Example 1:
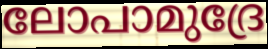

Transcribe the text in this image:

ലോപാമുദ്രേ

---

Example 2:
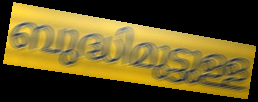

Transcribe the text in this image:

ബുദ്ധിമുട്ടുള്ള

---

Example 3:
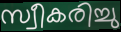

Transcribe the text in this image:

സ്വീകരിച്ചു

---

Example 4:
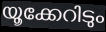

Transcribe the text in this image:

യൂക്കേറിടും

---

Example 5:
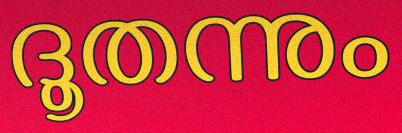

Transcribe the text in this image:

ദൂതന്നും